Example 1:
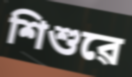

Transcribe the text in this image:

শিশুৱে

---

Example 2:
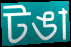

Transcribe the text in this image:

টঙা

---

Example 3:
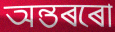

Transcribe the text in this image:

অন্তৰৰো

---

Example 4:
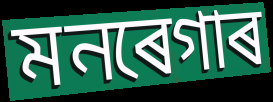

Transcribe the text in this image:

মনৰেগাৰ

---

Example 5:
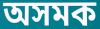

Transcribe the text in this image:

অসমক